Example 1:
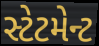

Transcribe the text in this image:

સ્ટેટમેન્ટ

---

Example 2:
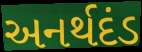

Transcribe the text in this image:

અનર્થદંડ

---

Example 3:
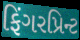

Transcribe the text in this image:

ફિંગરપ્રિન્ટ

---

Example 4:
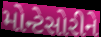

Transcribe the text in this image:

મોન્ટેસોરીને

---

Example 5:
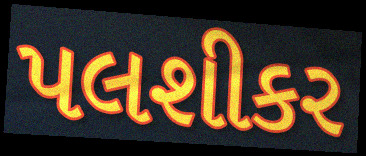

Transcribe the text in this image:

પલશીકર